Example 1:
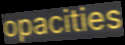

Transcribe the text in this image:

opacities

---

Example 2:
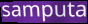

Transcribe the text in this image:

samputa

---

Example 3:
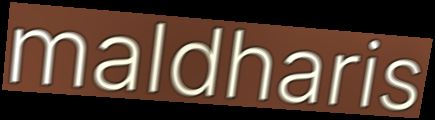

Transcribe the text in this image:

maldharis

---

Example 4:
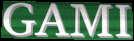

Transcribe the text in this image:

GAMI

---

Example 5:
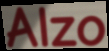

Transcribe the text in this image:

Alzo